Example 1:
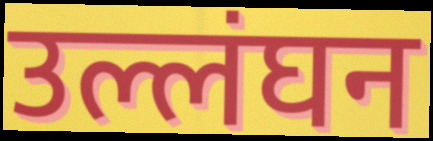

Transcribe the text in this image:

उल्लंघन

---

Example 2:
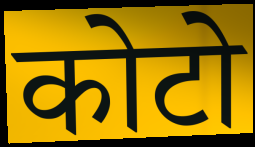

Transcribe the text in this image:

कोटो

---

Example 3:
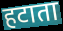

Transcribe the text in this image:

हटाता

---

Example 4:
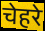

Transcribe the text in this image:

चेहरे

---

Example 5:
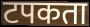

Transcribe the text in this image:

टपकता